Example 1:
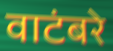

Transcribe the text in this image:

वाटंबरे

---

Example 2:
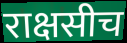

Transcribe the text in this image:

राक्षसीच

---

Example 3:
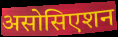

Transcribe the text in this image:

असोसिएशन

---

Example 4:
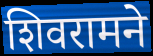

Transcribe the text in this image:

शिवरामने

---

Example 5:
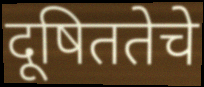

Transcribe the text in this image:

दूषिततेचे